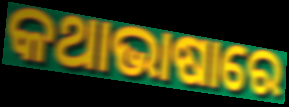
କଥାଭାଷାରେ